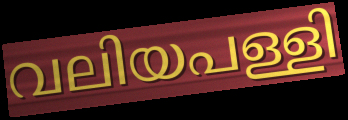
വലിയപള്ളി